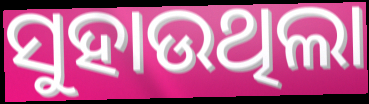
ସୁହାଉଥିଲା